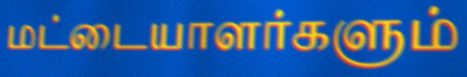
மட்டையாளர்களும்